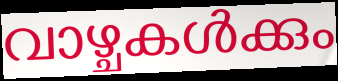
വാഴ്ചകൾക്കും